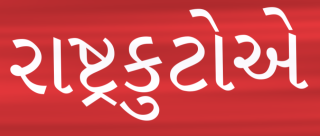
રાષ્ટ્રકુટોએ